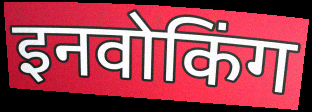
इनवोकिंग